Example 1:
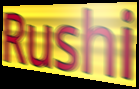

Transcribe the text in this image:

Rushi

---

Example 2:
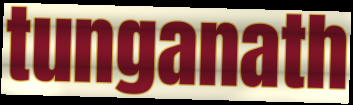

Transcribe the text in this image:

tunganath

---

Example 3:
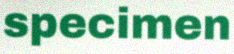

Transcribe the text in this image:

specimen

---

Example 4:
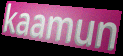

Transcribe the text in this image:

kaamun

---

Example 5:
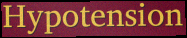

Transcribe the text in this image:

Hypotension